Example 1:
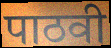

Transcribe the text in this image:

पाठवी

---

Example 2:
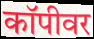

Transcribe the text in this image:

कॉपीवर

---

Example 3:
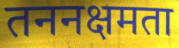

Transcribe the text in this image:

तननक्षमता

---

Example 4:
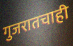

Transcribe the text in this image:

गुजरातचाही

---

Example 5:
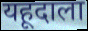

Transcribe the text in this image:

यहूदाला